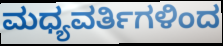
ಮಧ್ಯವರ್ತಿಗಳಿಂದ